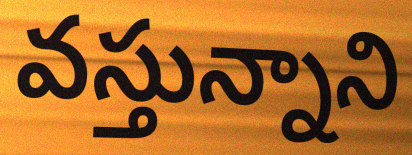
వస్తున్నాని